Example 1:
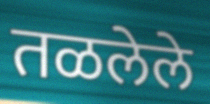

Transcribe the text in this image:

तळलेले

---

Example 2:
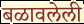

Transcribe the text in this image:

बळावलेली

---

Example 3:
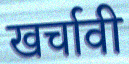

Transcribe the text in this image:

खर्चावी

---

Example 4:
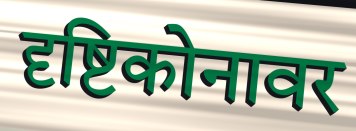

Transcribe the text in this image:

दृष्टिकोनावर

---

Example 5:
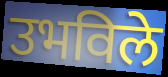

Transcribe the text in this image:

उभविले